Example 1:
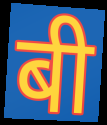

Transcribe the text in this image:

बी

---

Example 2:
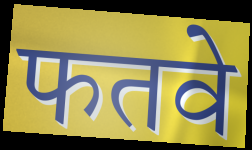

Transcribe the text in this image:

फतवे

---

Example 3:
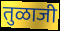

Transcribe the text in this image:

तुळाजी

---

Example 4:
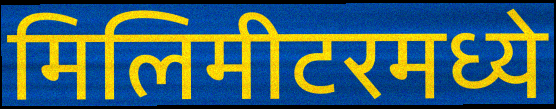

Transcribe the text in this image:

मिलिमीटरमध्ये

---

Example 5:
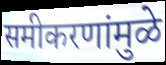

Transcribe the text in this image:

समीकरणांमुळे